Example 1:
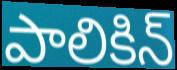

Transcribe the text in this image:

పాలికిన్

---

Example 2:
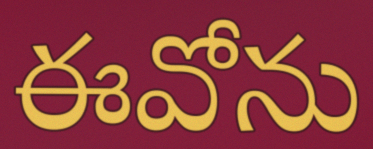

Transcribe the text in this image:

ఈవోను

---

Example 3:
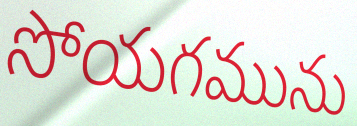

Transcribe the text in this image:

సోయగమును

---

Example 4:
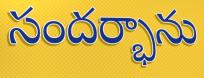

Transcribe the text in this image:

సందర్భాను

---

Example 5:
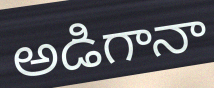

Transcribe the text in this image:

అడిగానా